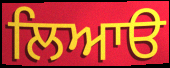
ਲਿਆੳ